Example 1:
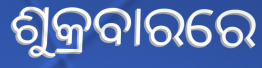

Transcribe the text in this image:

ଶୁକ୍ରବାରରେ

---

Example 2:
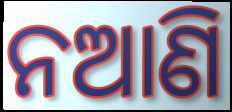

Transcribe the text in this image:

ନଆଣି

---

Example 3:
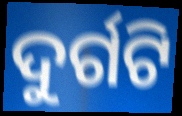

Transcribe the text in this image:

ଦୁର୍ଗଟି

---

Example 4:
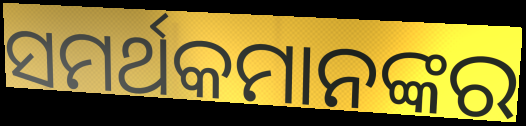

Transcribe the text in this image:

ସମର୍ଥକମାନଙ୍କର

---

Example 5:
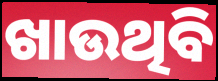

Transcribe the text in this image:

ଖାଉଥିବି